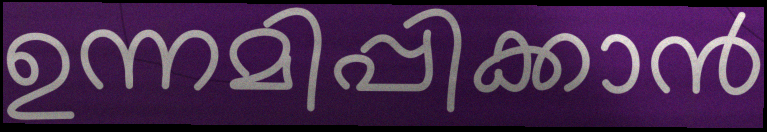
ഉന്നമിപ്പിക്കാൻ